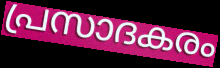
പ്രസാദകരം